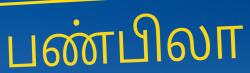
பண்பிலா